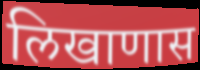
लिखाणास